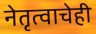
नेतृत्वाचेही